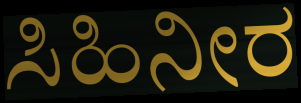
ಸಿಹಿನೀರ